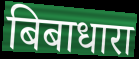
बिबाधारा